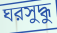
ঘরসুদ্ধু